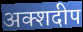
अक्शदीप